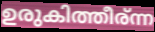
ഉരുകിത്തീര്ന്ന